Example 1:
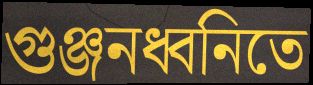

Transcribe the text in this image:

গুঞ্জনধ্বনিতে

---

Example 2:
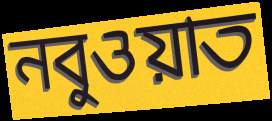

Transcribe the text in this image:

নবুওয়াত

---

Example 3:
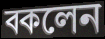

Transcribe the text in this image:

বকলেন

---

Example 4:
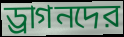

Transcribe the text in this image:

ড্রাগনদের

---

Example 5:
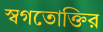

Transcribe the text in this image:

স্বগতোক্তির